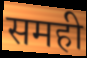
समही